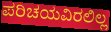
ಪರಿಚಯವಿರಲಿಲ್ಲ